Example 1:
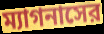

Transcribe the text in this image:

ম্যাগনাসের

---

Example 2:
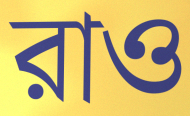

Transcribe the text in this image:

রাও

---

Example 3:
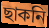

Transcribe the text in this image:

ছাকনি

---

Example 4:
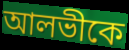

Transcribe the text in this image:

আলভীকে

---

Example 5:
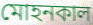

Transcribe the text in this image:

মোহনকাল